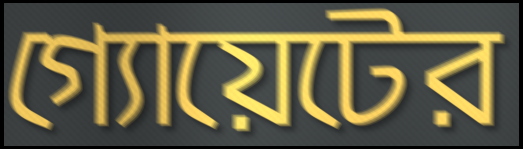
গ্যোয়েটের